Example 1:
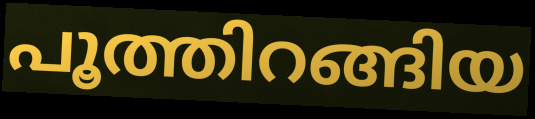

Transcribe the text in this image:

പൂത്തിറങ്ങിയ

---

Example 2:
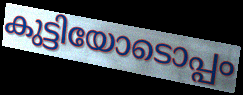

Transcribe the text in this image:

കുട്ടിയോടൊപ്പം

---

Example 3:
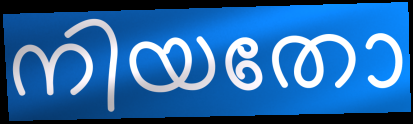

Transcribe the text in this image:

നിയതോ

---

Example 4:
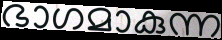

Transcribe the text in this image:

ഭാഗമാകുന്ന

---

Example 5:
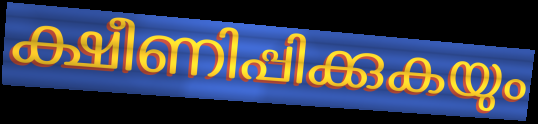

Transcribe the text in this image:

ക്ഷീണിപ്പിക്കുകയും